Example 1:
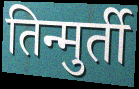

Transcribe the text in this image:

तिन्मुर्ती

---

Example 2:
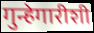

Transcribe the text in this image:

गुन्हेगारीशी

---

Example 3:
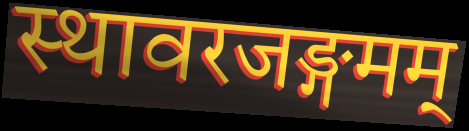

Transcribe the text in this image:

स्थावरजङ्गमम्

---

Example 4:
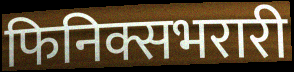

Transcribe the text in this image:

फिनिक्सभरारी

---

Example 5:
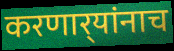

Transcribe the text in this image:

करणार्‍यांनाच